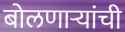
बोलणाऱ्यांची